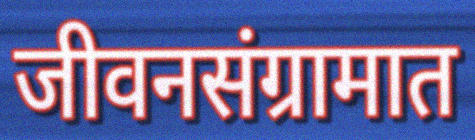
जीवनसंग्रामात